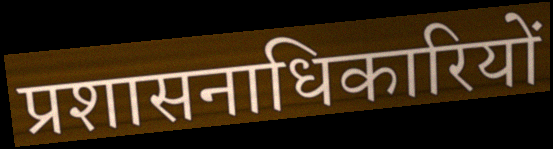
प्रशासनाधिकारियों